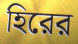
হিরের